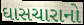
ઘાસચારાનો